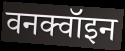
वनक्वॉइन